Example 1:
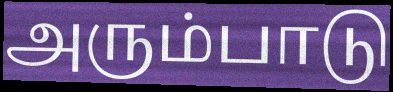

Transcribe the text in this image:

அரும்பாடு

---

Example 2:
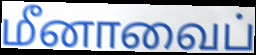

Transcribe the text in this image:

மீனாவைப்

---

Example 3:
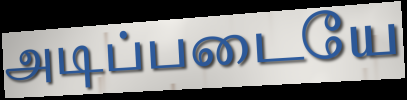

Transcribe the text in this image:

அடிப்படையே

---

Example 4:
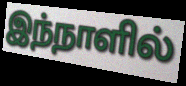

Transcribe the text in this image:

இந்நாளில்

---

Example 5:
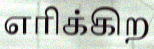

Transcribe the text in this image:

எரிக்கிற